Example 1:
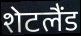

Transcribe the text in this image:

शेटलैंड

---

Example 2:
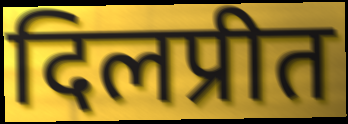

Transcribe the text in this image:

दिलप्रीत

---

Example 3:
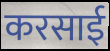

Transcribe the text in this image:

करसाई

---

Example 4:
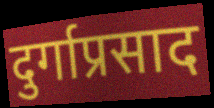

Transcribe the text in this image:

दुर्गाप्रसाद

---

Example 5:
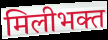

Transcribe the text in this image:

मिलीभक्त